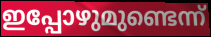
ഇപ്പോഴുമുണ്ടെന്ന്